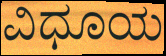
ವಿಧೂಯ